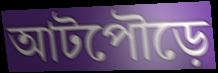
আটপৌড়ে